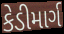
કેડીમાર્ગ